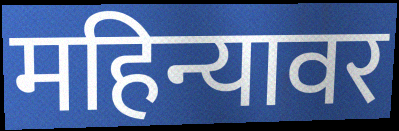
महिन्यावर